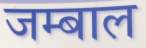
जम्बाल